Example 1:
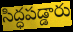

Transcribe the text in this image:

సిద్ధపడ్డారు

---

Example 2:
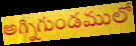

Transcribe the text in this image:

అగ్నిగుండములో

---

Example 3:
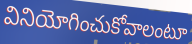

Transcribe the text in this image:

వినియోగించుకోవాలంటూ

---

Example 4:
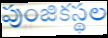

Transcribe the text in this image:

పుంజికస్థల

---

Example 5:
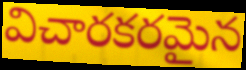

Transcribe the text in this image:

విచారకరమైన